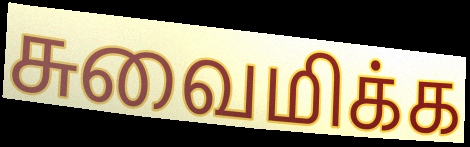
சுவைமிக்க